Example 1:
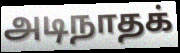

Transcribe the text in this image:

அடிநாதக்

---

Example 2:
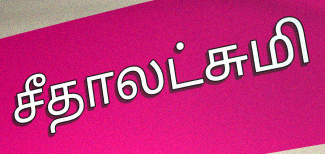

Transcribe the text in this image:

சீதாலட்சுமி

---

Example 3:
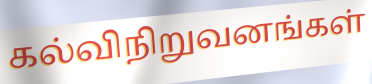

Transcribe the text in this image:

கல்விநிறுவனங்கள்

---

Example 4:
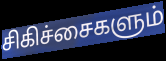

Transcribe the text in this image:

சிகிச்சைகளும்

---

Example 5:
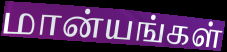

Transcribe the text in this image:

மான்யங்கள்